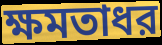
ক্ষমতাধর